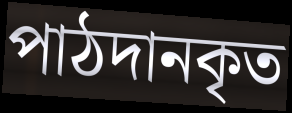
পাঠদানকৃত